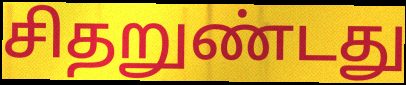
சிதறுண்டது